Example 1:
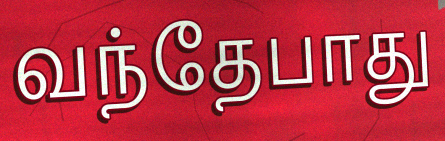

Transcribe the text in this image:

வந்தேபாது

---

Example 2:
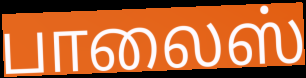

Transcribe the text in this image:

பாலைஸ்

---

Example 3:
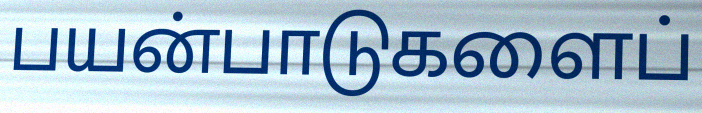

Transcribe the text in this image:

பயன்பாடுகளைப்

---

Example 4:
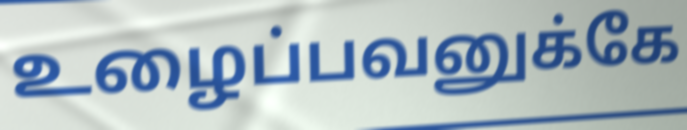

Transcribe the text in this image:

உழைப்பவனுக்கே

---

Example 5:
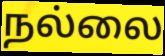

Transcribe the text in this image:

நல்லை